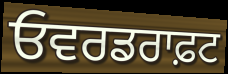
ਓਵਰਡਰਾਫ਼ਟ